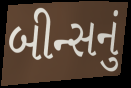
બીન્સનું